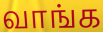
வாங்க